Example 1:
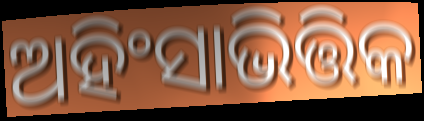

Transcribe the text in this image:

ଅହିଂସାଭିତ୍ତିକ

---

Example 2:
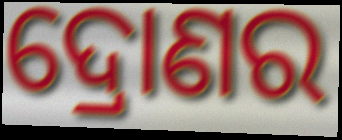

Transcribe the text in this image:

ଦ୍ରୋଣର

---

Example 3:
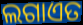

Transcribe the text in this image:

ଲଗାଏତ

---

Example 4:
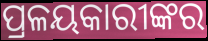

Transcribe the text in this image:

ପ୍ରଳୟକାରୀଙ୍କର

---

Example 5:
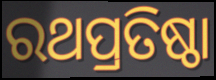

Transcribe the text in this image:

ରଥପ୍ରତିଷ୍ଠା